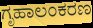
ಗೃಹಾಲಂಕರಣ